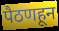
पैठणहून